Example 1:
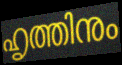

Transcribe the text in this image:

ഹൃത്തിനും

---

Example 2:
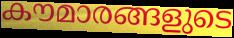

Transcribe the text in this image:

കൗമാരങ്ങളുടെ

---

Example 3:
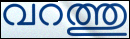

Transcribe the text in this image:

വറത്തു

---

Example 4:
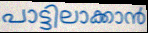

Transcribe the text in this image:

പാട്ടിലാക്കാൻ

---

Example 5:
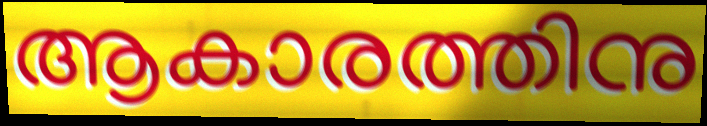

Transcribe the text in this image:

ആകാരത്തിനു